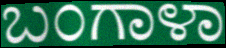
ಬಂಗಾಳಾ